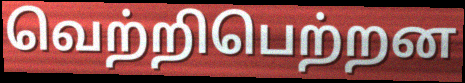
வெற்றிபெற்றன